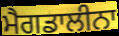
ਮੈਗਡਾਲੀਨਾ